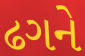
ઢગને